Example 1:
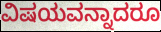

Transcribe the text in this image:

ವಿಷಯವನ್ನಾದರೂ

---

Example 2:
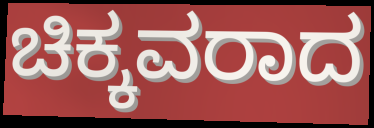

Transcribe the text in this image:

ಚಿಕ್ಕವರಾದ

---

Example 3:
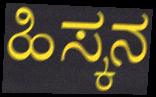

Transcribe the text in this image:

ಹಿಸ್ಕನ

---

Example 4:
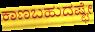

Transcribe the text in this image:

ಕಾಣಬಹುದಷ್ಟೇ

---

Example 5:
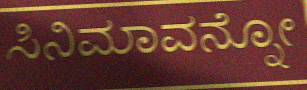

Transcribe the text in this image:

ಸಿನಿಮಾವನ್ನೋ